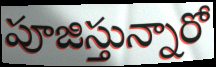
పూజిస్తున్నారో